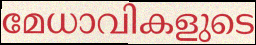
മേധാവികളുടെ